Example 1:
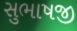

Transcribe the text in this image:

સુભાષજી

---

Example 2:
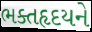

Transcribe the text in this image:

ભક્તહૃદયને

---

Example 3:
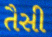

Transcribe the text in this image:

તૈસી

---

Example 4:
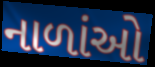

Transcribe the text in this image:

નાળાંઓ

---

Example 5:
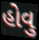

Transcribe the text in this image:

હોવુ